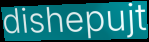
dishepujt